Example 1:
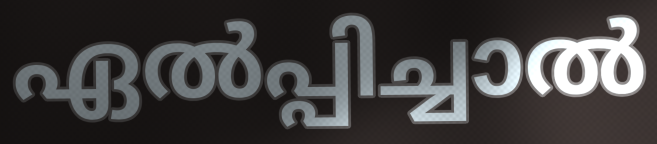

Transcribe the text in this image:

ഏൽപ്പിച്ചാൽ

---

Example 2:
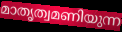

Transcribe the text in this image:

മാതൃത്വമണിയുന്ന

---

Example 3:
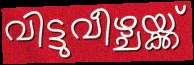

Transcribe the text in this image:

വിട്ടുവീഴ്ചയ്ക്ക്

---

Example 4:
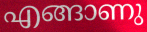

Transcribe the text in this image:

എങ്ങാണു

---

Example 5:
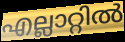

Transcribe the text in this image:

എല്ലാറ്റിൽ